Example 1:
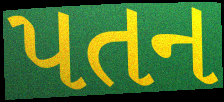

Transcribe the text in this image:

પતન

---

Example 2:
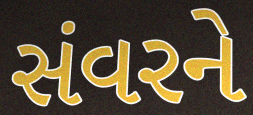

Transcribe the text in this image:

સંવરને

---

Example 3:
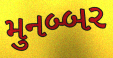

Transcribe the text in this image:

મુનબ્બર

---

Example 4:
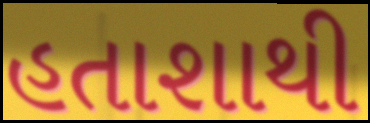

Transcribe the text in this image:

હતાશાથી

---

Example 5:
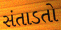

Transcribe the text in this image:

સંતાડતો